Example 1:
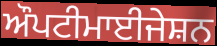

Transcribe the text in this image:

ਔਪਟੀਮਾਈਜੇਸ਼ਨ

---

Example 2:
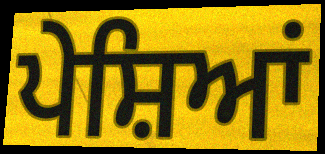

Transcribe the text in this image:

ਪੇਸ਼ਿਆਂ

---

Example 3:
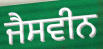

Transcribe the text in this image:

ਜੈਸਵੀਨ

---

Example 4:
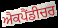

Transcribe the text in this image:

ਐਕਪੈਂਡੀਚਰ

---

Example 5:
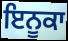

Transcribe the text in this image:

ਇਨੂਕਾ